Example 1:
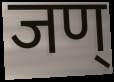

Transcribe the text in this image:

जण्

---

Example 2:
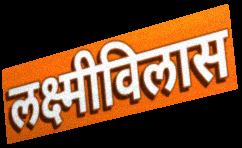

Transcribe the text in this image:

लक्ष्मीविलास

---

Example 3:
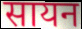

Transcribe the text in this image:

सायन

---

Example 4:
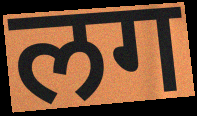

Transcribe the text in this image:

लग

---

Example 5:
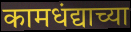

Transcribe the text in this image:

कामधंद्याच्या